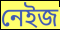
নেইজ